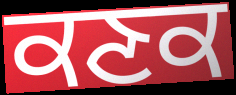
ਕਣਕ